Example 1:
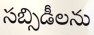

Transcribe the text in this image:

సబ్సిడీలను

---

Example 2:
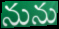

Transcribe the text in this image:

నును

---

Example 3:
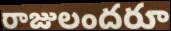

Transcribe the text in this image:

రాజులందరూ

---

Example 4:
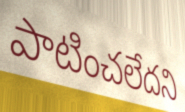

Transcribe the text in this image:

పాటించలేదని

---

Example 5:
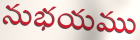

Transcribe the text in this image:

నుభయము